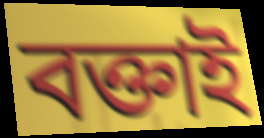
বক্তাই